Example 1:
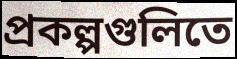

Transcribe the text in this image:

প্রকল্পগুলিতে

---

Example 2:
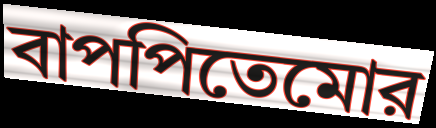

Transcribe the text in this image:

বাপপিতেমোর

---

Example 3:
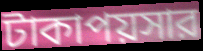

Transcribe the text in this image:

টাকাপয়সার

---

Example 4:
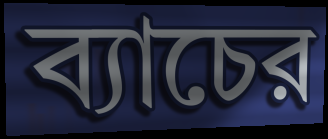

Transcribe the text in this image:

ব্যাচের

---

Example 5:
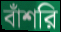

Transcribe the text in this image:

বাঁশরি